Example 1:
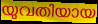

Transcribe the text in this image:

യുവതിയായ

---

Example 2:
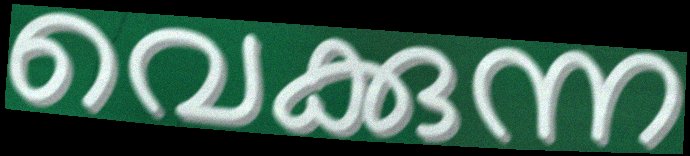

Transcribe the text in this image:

വെക്കുന്ന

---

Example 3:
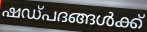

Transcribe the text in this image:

ഷഡ്പദങ്ങൾക്ക്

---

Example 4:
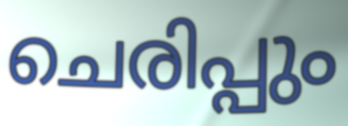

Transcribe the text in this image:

ചെരിപ്പും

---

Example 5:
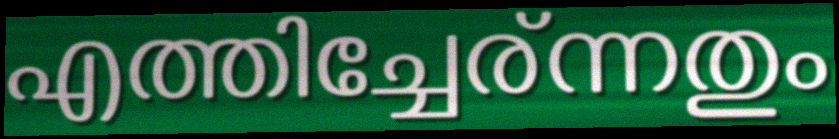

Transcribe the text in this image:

എത്തിച്ചേര്ന്നതും